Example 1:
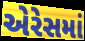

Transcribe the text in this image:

એરેસમાં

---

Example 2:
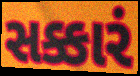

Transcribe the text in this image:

સક્કારં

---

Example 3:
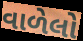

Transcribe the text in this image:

વાળેલો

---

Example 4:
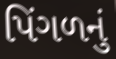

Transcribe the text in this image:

પિંગળનું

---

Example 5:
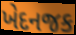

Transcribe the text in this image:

ખેદનજક